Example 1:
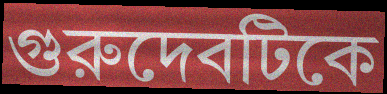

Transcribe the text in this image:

গুরুদেবটিকে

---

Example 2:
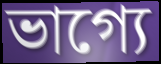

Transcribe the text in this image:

ভাগ্যে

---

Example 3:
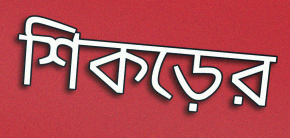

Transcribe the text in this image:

শিকড়ের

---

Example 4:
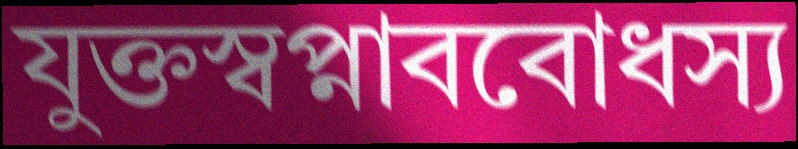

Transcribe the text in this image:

যুক্তস্বপ্নাববোধস্য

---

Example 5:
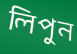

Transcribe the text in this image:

লিপুন